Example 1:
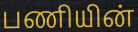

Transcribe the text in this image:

பணியின்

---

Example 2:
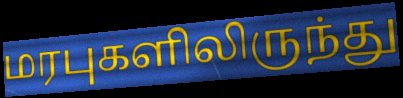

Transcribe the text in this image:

மரபுகளிலிருந்து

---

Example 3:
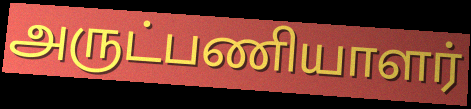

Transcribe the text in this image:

அருட்பணியாளர்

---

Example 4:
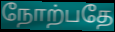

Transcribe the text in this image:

நோற்பதே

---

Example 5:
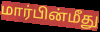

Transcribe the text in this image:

மார்பின்மீது